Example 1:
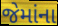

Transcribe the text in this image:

જેમાંના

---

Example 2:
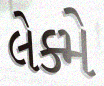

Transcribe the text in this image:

લેક્મે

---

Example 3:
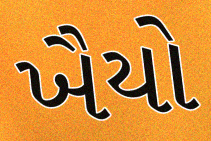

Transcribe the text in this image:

ખૈયો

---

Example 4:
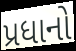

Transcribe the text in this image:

પ્રધાનો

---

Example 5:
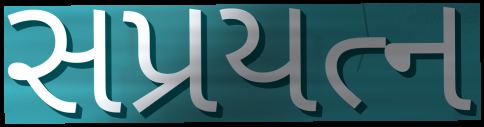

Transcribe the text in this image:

સપ્રયત્ન